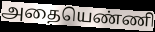
அதையெண்ணி